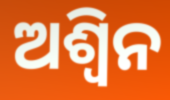
ଅଶ୍ଵିନ